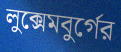
লুক্সেমবুর্গের